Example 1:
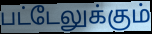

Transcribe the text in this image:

பட்டேலுக்கும்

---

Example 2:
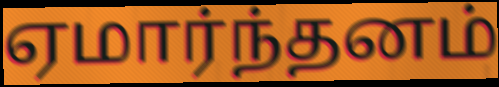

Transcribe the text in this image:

ஏமார்ந்தனம்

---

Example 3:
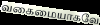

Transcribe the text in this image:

வகைமையாகவே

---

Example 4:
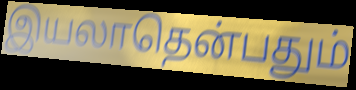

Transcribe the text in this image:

இயலாதென்பதும்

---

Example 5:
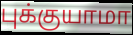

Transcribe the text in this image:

புக்குயாமா